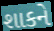
શાકને